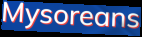
Mysoreans